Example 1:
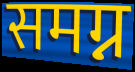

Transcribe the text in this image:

समग्न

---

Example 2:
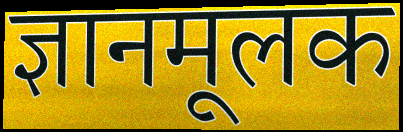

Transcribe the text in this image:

ज्ञानमूलक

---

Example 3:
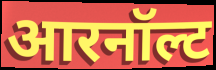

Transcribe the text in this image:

आरनॉल्ट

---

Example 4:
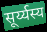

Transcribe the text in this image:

सूर्य्यस्य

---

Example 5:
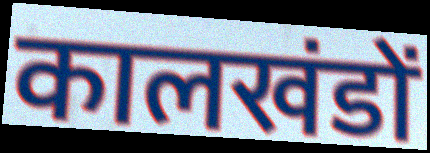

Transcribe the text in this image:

कालखंडों